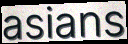
asians